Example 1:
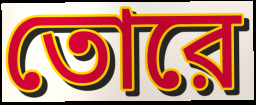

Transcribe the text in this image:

তোরে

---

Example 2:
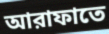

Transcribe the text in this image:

আরাফাতে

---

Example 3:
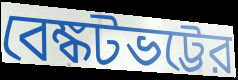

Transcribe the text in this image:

বেঙ্কটভট্টের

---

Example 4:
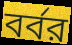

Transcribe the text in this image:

বর্বর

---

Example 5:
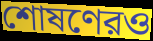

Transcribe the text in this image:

শোষণেরও